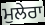
ਮੁਲੇਰਾ